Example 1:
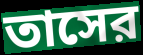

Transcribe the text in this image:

তাসের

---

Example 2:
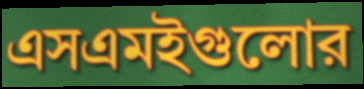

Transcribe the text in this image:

এসএমইগুলোর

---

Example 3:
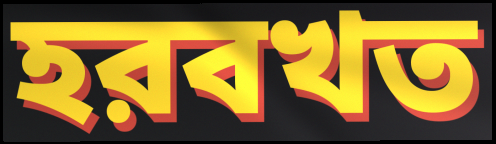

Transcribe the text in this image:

হরবখত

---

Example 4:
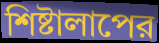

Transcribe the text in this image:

শিষ্টালাপের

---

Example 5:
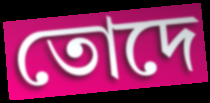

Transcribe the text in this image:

তোদে